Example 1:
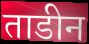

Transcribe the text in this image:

ताडीन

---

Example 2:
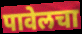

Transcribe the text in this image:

पावेलचा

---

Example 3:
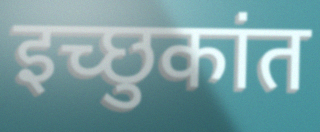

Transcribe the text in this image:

इच्छुकांत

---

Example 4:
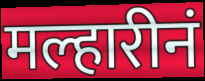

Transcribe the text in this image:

मल्हारीनं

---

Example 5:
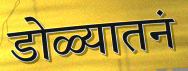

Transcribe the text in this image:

डोळ्यातनं